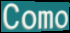
Como